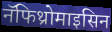
नॅफिथ्रोमाइसिन